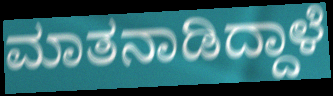
ಮಾತನಾಡಿದ್ದಾಳೆ